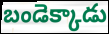
బండెక్కాడు